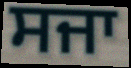
ਸਜਾ